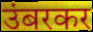
उंबरकर